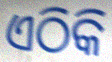
ଏଠିକି